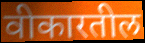
वीकारतील